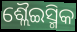
ଶ୍ଲୈଇସ୍ମିକ